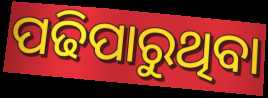
ପଢିପାରୁଥିବା